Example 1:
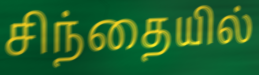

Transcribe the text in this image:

சிந்தையில்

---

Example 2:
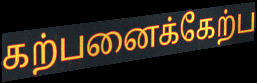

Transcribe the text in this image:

கற்பனைக்கேற்ப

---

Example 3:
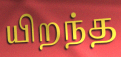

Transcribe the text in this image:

யிறந்த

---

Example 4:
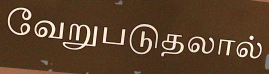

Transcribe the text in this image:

வேறுபடுதலால்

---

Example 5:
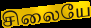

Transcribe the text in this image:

சிலையே